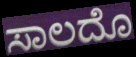
ಸಾಲದೊ